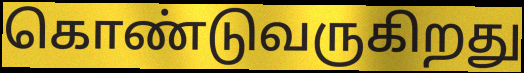
கொண்டுவருகிறது